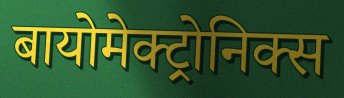
बायोमेक्ट्रोनिक्स